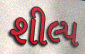
શીલ્પ